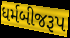
ધર્મબીજરૂપ